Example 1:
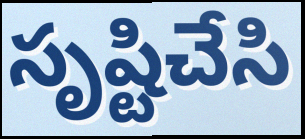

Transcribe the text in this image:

సృష్టిచేసి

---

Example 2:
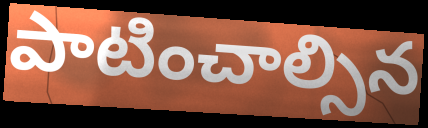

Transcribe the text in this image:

పాటించాల్సిన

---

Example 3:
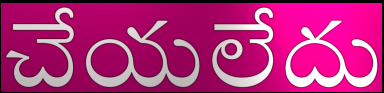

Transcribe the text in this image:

చేయలేదు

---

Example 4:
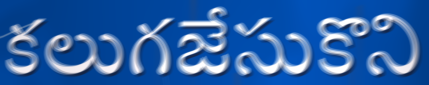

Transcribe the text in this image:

కలుగజేసుకొని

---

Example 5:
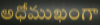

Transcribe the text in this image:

అధోముఖంగా